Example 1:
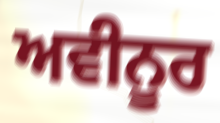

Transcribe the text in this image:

ਅਵੀਨੂਰ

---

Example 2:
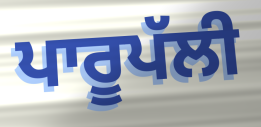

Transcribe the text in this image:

ਪਾਰੂਪੱਲੀ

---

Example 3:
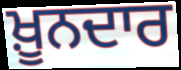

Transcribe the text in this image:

ਖ਼ੂਨਦਾਰ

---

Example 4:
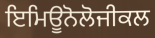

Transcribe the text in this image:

ਇਮਿਊਨੋਲੋਜੀਕਲ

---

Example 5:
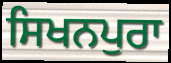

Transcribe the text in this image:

ਸਿਖਨਪੁਰਾ